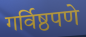
गर्विष्ठपणे